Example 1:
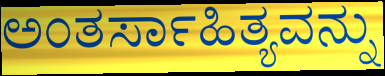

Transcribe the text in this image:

ಅಂತರ್ಸಾಹಿತ್ಯವನ್ನು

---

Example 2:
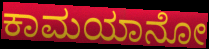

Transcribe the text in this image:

ಕಾಮಯಾನೋ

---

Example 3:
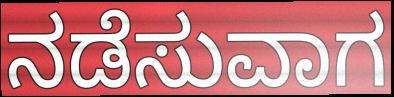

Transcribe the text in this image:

ನಡೆಸುವಾಗ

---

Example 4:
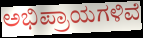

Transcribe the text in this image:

ಅಭಿಪ್ರಾಯಗಳಿವೆ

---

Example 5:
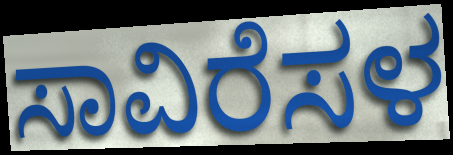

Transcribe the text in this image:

ಸಾವಿರೆಸಳ